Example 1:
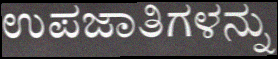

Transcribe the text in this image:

ಉಪಜಾತಿಗಳನ್ನು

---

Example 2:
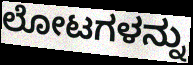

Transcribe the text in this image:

ಲೋಟಗಳನ್ನು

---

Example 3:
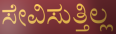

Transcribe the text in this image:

ಸೇವಿಸುತ್ತಿಲ್ಲ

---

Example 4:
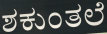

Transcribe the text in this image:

ಶಕುಂತಲೆ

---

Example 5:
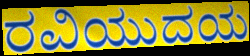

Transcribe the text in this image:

ರವಿಯುದಯ